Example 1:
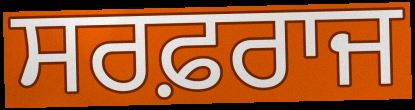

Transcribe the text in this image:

ਸਰਫ਼ਰਾਜ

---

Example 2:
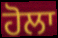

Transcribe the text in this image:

ਹੋਲਾ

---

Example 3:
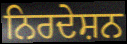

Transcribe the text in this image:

ਨਿਰਦੇਸ਼ਨ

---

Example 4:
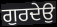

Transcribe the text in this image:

ਗੁਰਦੇਉ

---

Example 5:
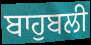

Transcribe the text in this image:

ਬਾਹੁਬਲੀ